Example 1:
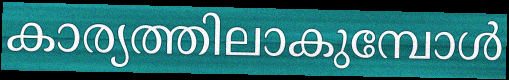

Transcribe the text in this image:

കാര്യത്തിലാകുമ്പോൾ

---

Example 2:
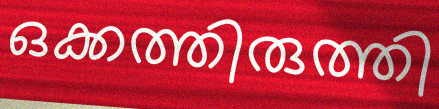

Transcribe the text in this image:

ഒക്കത്തിരുത്തി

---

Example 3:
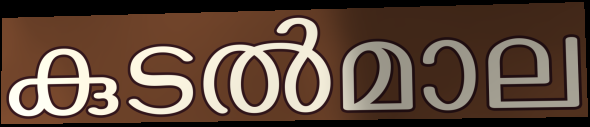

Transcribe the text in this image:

കുടൽമാല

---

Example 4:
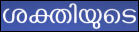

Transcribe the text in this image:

ശക്തിയുടെ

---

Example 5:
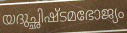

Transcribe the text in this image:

യദുച്ഛിഷ്ടമഭോജ്യം